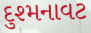
દુશ્મનાવટ